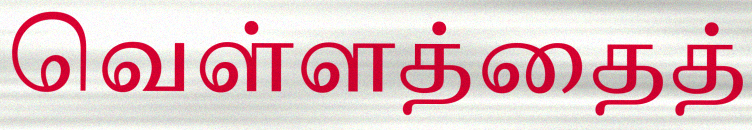
வெள்ளத்தைத்